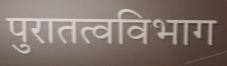
पुरातत्वविभाग